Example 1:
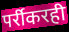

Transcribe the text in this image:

पर्रीकरही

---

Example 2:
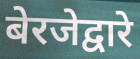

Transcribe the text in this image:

बेरजेद्वारे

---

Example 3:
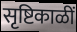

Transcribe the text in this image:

सृष्टिकाळीं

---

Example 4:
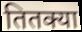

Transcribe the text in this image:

तितक्या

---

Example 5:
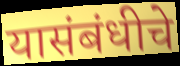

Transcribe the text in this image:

यासंबंधीचे